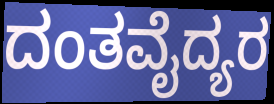
ದಂತವೈದ್ಯರ